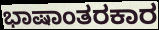
ಭಾಷಾಂತರಕಾರ